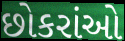
છોકરાંઓ